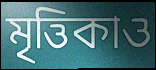
মৃত্তিকাও